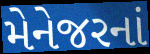
મેનેજરનાં